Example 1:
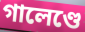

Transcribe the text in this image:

গালেণ্ডে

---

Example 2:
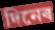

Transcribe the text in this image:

দিনেৰ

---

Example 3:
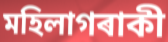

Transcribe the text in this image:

মহিলাগৰাকী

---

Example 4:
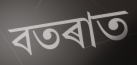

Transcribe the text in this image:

বতৰাত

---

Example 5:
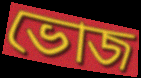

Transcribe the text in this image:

ভোজ